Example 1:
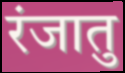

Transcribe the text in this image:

रंजातु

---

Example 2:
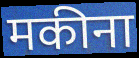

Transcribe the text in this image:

मकीना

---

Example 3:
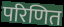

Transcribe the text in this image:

परिणित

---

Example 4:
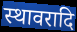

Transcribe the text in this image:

स्थावरादि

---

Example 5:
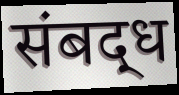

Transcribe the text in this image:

संबद्ध